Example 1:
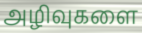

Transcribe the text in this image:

அழிவுகளை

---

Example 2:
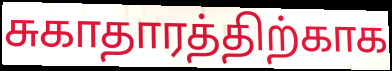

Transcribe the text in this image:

சுகாதாரத்திற்காக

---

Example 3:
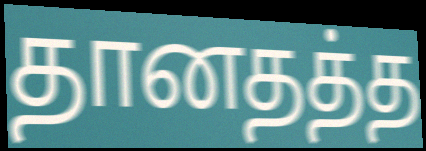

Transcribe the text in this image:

தானதத்த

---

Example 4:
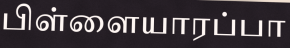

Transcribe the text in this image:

பிள்ளையாரப்பா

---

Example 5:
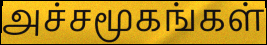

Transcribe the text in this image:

அச்சமூகங்கள்